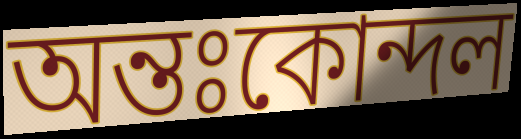
অন্তঃকোন্দল